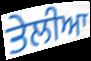
ਤੇਲੀਆ